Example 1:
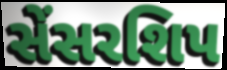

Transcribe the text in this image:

સેંસરશિપ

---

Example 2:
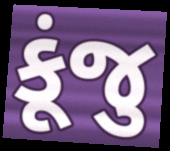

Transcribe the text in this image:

કૂંજુ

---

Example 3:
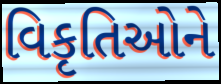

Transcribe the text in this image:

વિકૃતિઓને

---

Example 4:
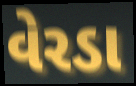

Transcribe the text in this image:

વેરડા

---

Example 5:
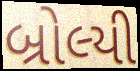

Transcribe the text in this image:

બ્રોલ્યી